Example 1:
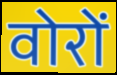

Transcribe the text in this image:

वोरों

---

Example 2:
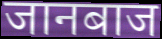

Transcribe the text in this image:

जानबाज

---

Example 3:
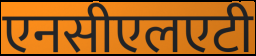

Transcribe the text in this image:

एनसीएलएटी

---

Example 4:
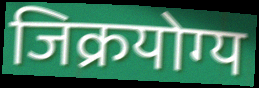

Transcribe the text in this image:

जिक्रयोग्य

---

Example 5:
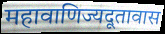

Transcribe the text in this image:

महावाणिज्यदूतावास